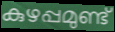
കുഴപ്പമുണ്ട്